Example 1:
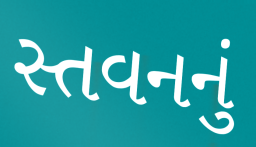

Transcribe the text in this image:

સ્તવનનું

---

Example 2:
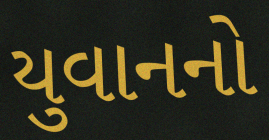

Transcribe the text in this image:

યુવાનનો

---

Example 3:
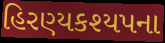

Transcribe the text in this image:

હિરણ્યકશ્યપના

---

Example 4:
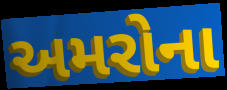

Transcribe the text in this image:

અમરોના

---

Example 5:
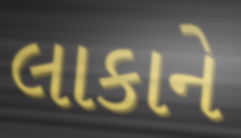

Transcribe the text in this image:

લાકાને